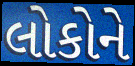
લોકોને